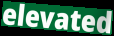
elevated